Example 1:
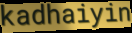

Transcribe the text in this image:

kadhaiyin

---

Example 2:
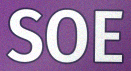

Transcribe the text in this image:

SOE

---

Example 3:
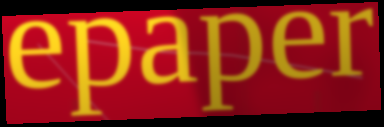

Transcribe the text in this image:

epaper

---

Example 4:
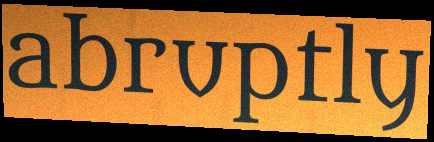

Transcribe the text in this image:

abruptly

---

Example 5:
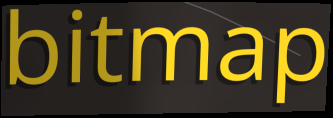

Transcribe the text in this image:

bitmap